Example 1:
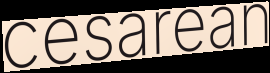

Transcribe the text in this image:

cesarean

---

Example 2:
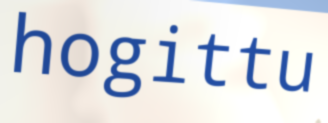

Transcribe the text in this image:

hogittu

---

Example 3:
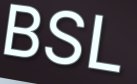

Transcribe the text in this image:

BSL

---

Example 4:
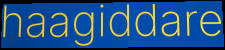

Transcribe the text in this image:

haagiddare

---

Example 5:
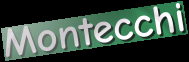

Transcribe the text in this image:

Montecchi